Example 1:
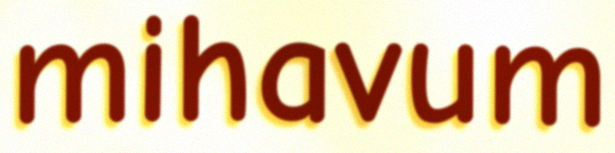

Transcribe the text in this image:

mihavum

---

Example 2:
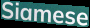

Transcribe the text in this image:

Siamese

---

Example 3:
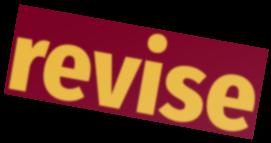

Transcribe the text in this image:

revise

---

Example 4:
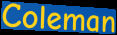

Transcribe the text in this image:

Coleman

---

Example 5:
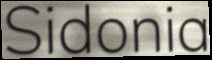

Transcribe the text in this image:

Sidonia